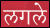
लगले